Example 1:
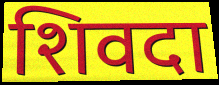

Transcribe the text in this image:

शिवदा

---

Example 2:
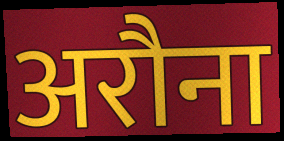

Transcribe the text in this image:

अरौना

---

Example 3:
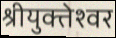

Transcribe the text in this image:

श्रीयुक्तेश्वर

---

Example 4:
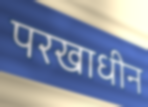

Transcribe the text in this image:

परखाधीन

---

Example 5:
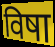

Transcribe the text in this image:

विषा